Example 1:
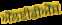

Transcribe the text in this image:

ਐੱਲਈਡੀਐੱਸ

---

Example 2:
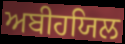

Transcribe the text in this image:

ਅਬੀਹਯਿਲ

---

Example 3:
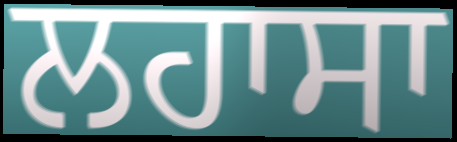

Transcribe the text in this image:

ਲਹਾਸਾ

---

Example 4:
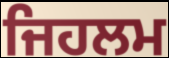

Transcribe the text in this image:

ਜਿਹਲਮ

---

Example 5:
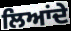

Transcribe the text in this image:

ਲਿਆਂਦੇ